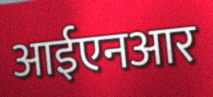
आईएनआर